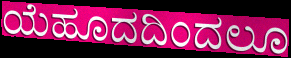
ಯೆಹೂದದಿಂದಲೂ